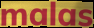
malas